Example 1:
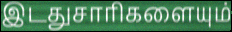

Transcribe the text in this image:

இடதுசாரிகளையும்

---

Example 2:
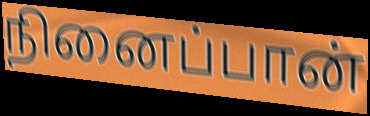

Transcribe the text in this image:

நினைப்பான்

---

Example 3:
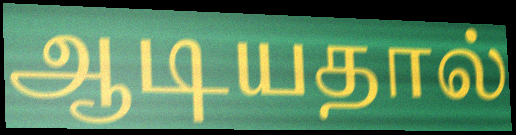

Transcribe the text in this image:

ஆடியதால்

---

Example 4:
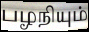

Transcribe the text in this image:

பழநியும்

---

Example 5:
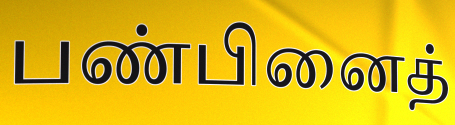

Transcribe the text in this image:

பண்பினைத்